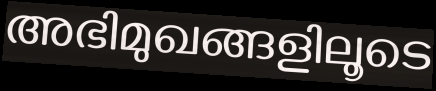
അഭിമുഖങ്ങളിലൂടെ